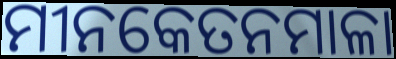
ମୀନକେତନମାଳା